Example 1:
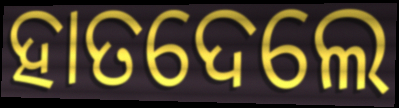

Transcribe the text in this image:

ହାତଦେଲେ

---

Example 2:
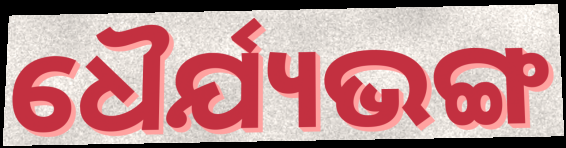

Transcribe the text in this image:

ଧୈର୍ଯ୍ୟଭଙ୍ଗ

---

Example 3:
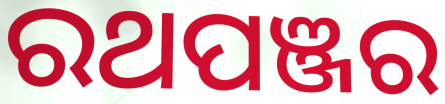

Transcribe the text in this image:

ରଥପଞ୍ଜର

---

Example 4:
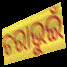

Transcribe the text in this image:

ଚରାଭୁଇଁ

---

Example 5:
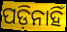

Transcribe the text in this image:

ପଡ଼ିନାହିଁ